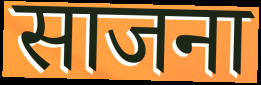
साजना